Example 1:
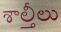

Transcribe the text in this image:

శాల్తీలు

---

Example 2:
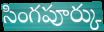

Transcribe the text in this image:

సింగపూర్కు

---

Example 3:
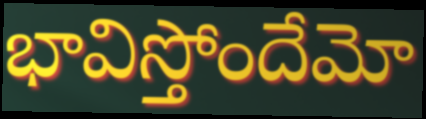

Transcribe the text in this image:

భావిస్తోందేమో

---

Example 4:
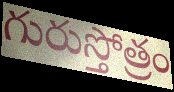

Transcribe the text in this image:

గురుస్తోత్రం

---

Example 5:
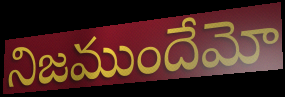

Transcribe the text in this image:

నిజముందేమో